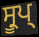
ਸ੍ਰੂਪ੍